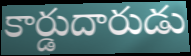
కార్డుదారుడు